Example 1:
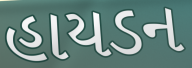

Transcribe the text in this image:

હાયડન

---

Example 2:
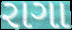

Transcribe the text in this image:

રાગા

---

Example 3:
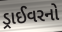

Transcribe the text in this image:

ડ્રાઈવરનો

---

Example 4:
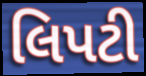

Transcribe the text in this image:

લિપટી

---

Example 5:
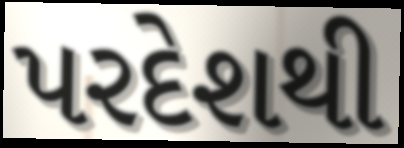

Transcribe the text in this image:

પરદેશથી